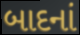
બાદનાં